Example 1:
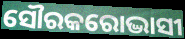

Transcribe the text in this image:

ସୌରକରୋଦ୍ଭାସୀ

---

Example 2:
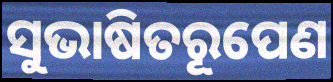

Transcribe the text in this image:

ସୁଭାଷିତରୂପେଣ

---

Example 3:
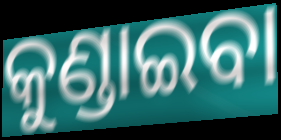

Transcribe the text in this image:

କୁଣ୍ଡାଇବା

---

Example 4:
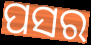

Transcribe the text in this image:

ପସର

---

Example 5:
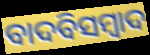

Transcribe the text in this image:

ବାଦବିସମ୍ବାଦ